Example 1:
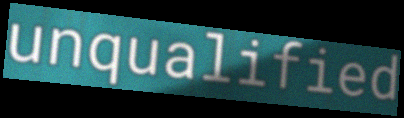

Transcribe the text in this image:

unqualified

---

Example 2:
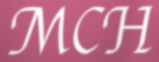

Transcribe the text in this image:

MCH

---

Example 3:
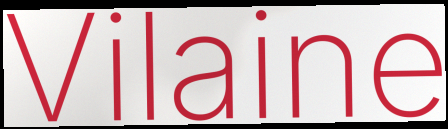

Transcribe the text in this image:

Vilaine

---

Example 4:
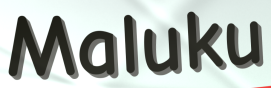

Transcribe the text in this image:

Maluku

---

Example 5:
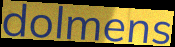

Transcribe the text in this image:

dolmens